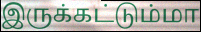
இருக்கட்டும்மா